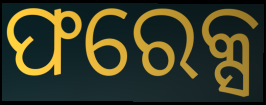
ଫରେକ୍ସ